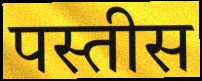
पस्तीस